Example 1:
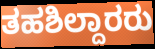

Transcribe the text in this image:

ತಹಶಿಲ್ದಾರರು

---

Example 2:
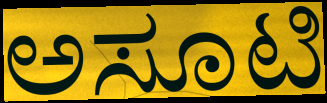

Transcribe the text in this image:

ಅಸೂಟಿ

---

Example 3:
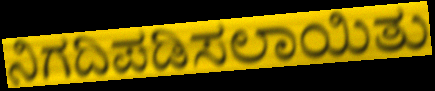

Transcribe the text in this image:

ನಿಗದಿಪಡಿಸಲಾಯಿತು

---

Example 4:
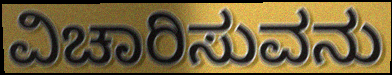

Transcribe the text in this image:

ವಿಚಾರಿಸುವನು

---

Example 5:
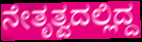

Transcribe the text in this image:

ನೇತೃತ್ವದಲ್ಲಿದ್ದ